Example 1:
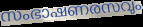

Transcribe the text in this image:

സംഭാഷണരസവും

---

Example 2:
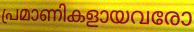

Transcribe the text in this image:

പ്രമാണികളായവരോ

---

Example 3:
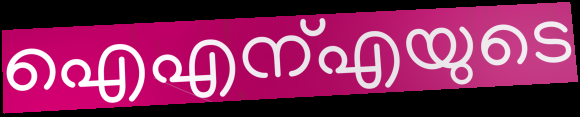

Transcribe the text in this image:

ഐഎന്എയുടെ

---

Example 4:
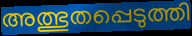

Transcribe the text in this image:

അത്ഭുതപ്പെടുത്തി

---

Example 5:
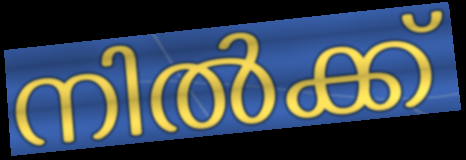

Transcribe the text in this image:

നിൽക്ക്